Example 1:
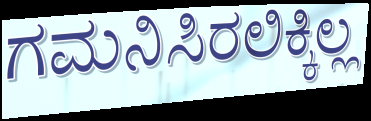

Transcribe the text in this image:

ಗಮನಿಸಿರಲಿಕ್ಕಿಲ್ಲ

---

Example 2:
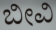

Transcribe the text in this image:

ಬೀವಿ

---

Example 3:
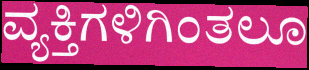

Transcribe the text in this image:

ವ್ಯಕ್ತಿಗಳಿಗಿಂತಲೂ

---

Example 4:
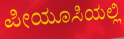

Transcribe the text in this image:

ಪೀಯೂಸಿಯಲ್ಲಿ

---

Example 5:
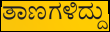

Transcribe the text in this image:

ತಾಣಗಳಿದ್ದು